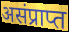
असंप्राप्त